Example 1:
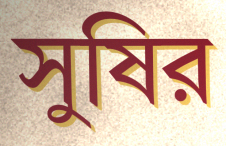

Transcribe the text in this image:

সুষির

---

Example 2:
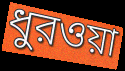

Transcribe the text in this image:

ধুরওয়া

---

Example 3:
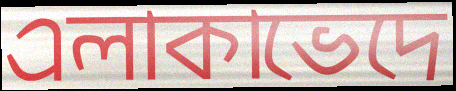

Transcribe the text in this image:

এলাকাভেদে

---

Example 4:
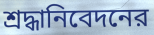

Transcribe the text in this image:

শ্রদ্ধানিবেদনের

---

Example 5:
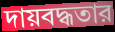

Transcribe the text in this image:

দায়বদ্ধতার